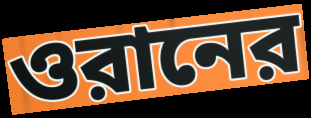
ওরানের